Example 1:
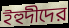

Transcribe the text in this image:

ইহুদীদের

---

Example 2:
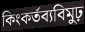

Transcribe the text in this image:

কিংকর্তব্যবিমুঢ়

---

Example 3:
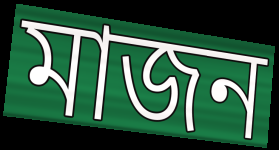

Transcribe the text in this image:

মাজন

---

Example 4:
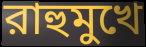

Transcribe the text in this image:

রাহুমুখে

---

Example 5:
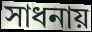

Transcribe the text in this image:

সাধনায়